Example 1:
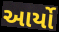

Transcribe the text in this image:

આર્યો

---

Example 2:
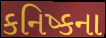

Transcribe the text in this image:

કનિષ્કના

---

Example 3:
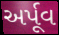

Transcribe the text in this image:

અર્પૂવ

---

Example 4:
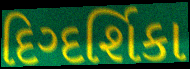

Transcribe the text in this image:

દિગ્દર્શિકા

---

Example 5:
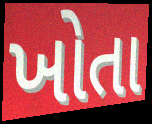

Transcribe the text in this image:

ખોતા